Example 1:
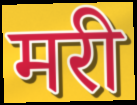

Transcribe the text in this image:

मरी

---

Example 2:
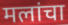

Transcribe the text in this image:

मलांचा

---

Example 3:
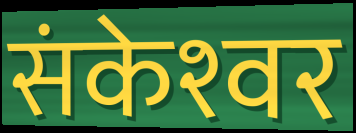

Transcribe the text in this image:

संकेश्वर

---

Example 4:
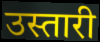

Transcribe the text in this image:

उस्तारी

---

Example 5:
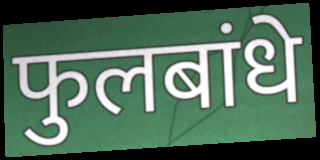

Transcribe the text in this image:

फुलबांधे